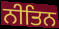
ਨੀਤਿਨ